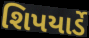
શિપયાર્ડે